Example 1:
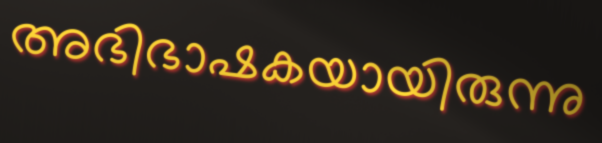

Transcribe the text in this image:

അഭിഭാഷകയായിരുന്നു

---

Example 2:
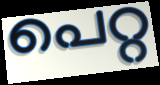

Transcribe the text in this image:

പെറ്റ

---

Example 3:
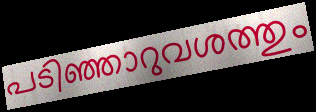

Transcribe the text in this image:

പടിഞ്ഞാറുവശത്തും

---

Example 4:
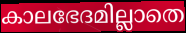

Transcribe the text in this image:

കാലഭേദമില്ലാതെ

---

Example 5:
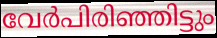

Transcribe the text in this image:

വേർപിരിഞ്ഞിട്ടും